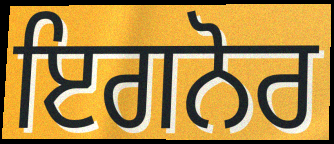
ਇਗਨੋਰ